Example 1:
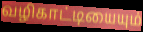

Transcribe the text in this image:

வழிகாட்டியையும்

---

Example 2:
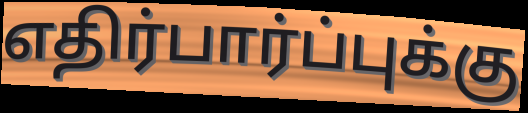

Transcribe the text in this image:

எதிர்பார்ப்புக்கு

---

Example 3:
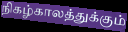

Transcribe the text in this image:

நிகழ்காலத்துக்கும்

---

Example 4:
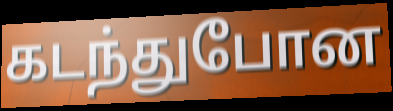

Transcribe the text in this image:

கடந்துபோன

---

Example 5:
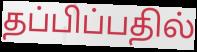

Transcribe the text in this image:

தப்பிப்பதில்